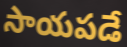
సాయపడే